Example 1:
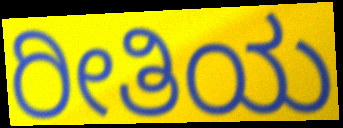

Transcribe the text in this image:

ರೀತಿಯ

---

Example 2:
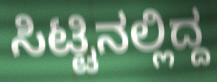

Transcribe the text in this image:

ಸಿಟ್ಟಿನಲ್ಲಿದ್ದ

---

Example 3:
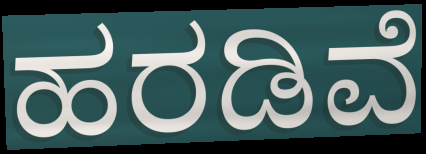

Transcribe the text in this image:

ಹರಡಿವೆ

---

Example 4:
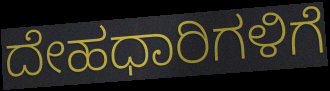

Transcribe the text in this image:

ದೇಹಧಾರಿಗಳಿಗೆ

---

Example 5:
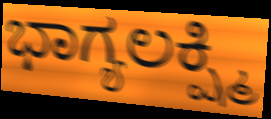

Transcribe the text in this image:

ಭಾಗ್ಯಲಕ್ಷ್ಮಿ